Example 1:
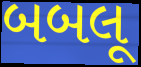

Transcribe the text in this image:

બબલૂ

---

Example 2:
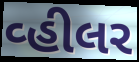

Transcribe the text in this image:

વ્હીલર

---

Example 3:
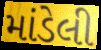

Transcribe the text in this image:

માંડેલી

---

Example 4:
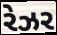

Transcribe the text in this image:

રેઝર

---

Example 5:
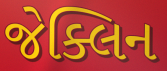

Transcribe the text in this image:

જેક્લિન